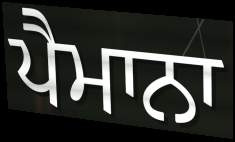
ਪੈਮਾਨਾ